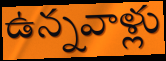
ఉన్నవాళ్లు